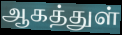
ஆகத்துள்